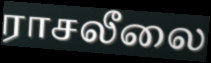
ராசலீலை